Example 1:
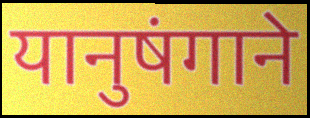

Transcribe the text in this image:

यानुषंगाने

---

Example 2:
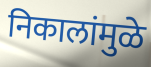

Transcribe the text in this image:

निकालांमुळे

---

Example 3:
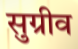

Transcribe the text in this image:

सुग्रीव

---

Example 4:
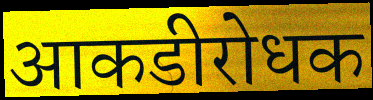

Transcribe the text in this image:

आकडीरोधक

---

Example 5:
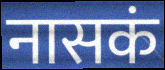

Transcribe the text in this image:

नासकं